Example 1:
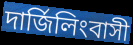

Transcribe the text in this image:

দার্জিলিংবাসী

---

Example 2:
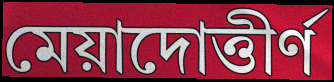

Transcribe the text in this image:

মেয়াদোত্তীর্ণ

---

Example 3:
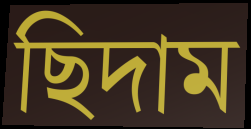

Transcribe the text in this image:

ছিদাম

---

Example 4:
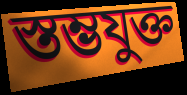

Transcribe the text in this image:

স্তম্ভযুক্ত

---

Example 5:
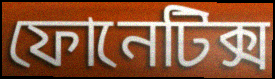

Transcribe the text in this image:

ফোনেটিক্স